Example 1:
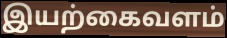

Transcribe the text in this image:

இயற்கைவளம்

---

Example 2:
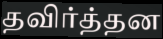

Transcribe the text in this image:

தவிர்த்தன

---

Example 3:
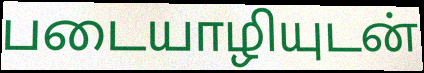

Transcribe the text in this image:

படையாழியுடன்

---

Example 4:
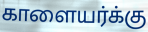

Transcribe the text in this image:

காளையர்க்கு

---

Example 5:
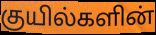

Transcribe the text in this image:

குயில்களின்